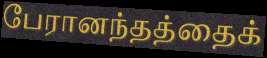
பேரானந்தத்தைக்